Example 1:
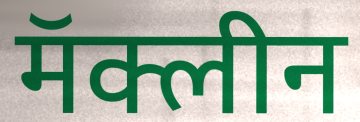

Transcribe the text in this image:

मॅक्लीन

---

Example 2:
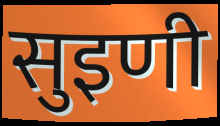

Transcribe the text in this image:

सुइणी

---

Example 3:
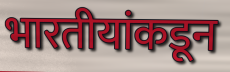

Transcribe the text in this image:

भारतीयांकडून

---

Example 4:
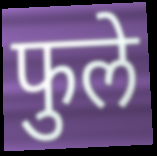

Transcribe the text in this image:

फुले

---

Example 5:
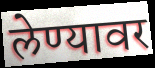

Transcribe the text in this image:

लेण्यावर